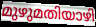
മുഴുമതിയാഴി